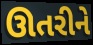
ઊતરીને